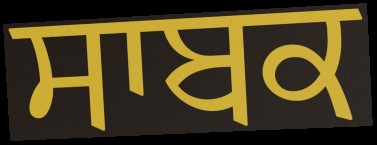
ਸਾਬਕ